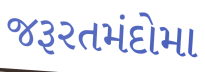
જરૂરતમંદોમા